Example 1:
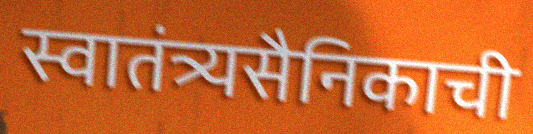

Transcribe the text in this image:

स्वातंत्र्यसैनिकाची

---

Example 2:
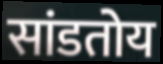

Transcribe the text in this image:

सांडतोय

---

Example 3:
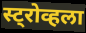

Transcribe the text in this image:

स्ट्रोव्हला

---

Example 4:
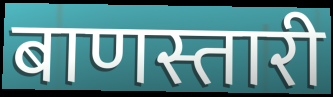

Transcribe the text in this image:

बाणस्तारी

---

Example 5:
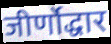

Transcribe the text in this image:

जीर्णोद्धार